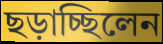
ছড়াচ্ছিলেন